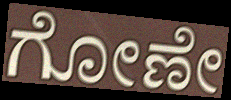
ಗೋಣೇ